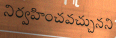
నిర్వహించవచ్చునని